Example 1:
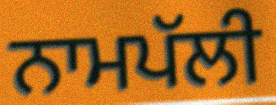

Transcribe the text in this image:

ਨਾਮਪੱਲੀ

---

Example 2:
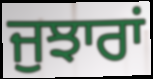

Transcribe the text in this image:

ਜੁਝਾਰਾਂ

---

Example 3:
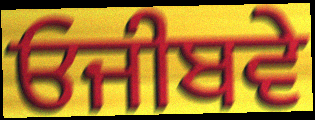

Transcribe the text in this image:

ਓਜੀਬਵੇ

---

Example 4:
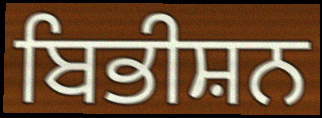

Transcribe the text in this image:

ਬਿਭੀਸ਼ਨ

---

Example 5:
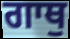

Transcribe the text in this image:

ਗਾਥੁ